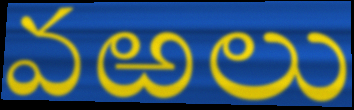
వఱలు